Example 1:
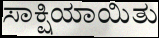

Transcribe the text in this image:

ಸಾಕ್ಷಿಯಾಯಿತು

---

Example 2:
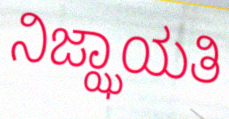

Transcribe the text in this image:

ನಿಜ್ಝಾಯತಿ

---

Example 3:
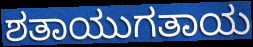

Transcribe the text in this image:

ಶತಾಯುಗತಾಯ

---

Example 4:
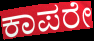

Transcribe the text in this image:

ಕಾಪರೇ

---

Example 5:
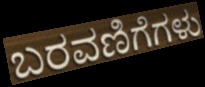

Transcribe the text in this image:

ಬರವಣಿಗೆಗಳು